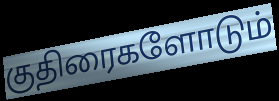
குதிரைகளோடும்